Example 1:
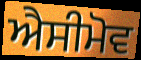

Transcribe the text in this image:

ਐਸੀਮੋਵ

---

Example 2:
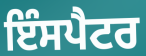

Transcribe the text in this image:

ਇੰਸਪੈਟਰ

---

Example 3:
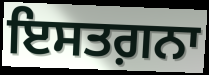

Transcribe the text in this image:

ਇਸਤਗ਼ਨਾ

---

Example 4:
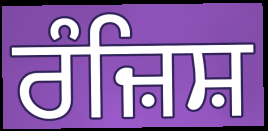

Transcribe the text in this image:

ਰੰਜ਼ਿਸ਼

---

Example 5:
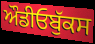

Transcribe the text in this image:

ਔਡੀਓਬੁੱਕਸ